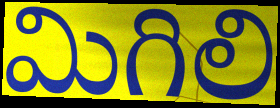
మిగిలి